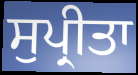
ਸੁਪ੍ਰੀਤਾ